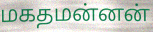
மகதமன்னன்